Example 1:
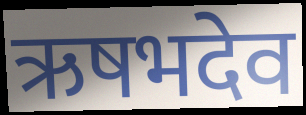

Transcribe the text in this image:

ऋषभदेव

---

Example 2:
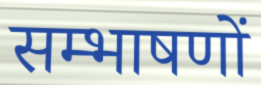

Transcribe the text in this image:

सम्भाषणों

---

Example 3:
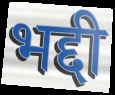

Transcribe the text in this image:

भद्दी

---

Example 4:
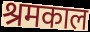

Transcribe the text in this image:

श्रमकाल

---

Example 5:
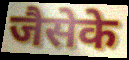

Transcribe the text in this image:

जैसेके